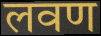
लवण